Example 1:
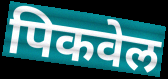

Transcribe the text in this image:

पिकवेल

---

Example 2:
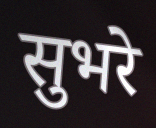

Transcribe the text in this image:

सुभरे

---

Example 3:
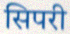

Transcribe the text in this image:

सिपरी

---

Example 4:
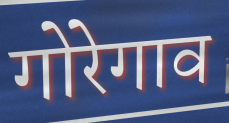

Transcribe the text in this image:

गोरेगाव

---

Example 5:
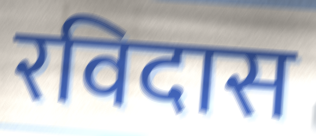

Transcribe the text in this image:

रविदास